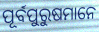
ପୂର୍ବପୁରୁଷମାନେ